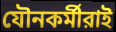
যৌনকর্মীরাই